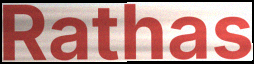
Rathas